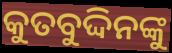
କୁତବୁଦ୍ଦିନଙ୍କୁ